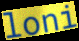
loni